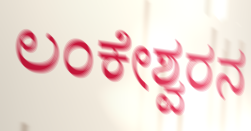
ಲಂಕೇಶ್ವರನ